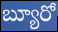
బ్యూరో